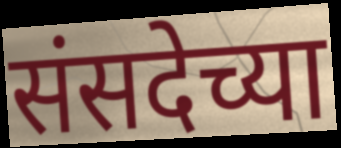
संसदेच्या